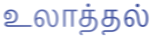
உலாத்தல்